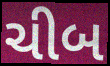
ચીબ